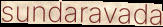
sundaravada